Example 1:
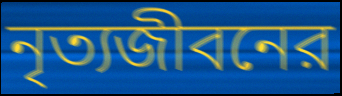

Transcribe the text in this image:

নৃত্যজীবনের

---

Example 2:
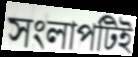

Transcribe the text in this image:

সংলাপটিই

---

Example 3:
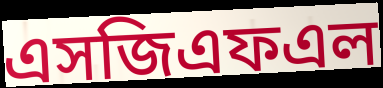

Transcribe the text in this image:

এসজিএফএল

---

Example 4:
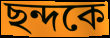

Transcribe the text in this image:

ছন্দকে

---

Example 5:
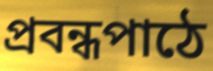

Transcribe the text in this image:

প্রবন্ধপাঠে